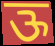
ক্ত